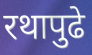
रथापुढे